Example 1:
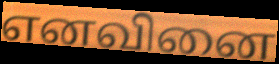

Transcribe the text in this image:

எனவினை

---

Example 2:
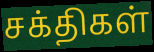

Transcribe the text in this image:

சக்திகள்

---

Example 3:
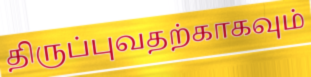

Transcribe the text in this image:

திருப்புவதற்காகவும்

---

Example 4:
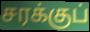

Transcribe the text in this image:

சரக்குப்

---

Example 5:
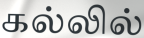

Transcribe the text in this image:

கல்லில்